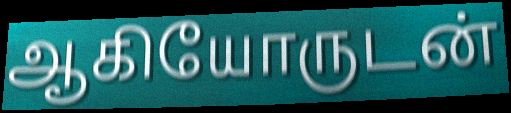
ஆகியோருடன்